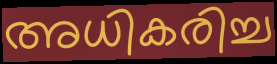
അധികരിച്ച